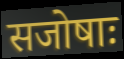
सजोषाः